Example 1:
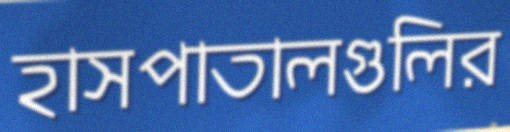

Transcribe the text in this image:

হাসপাতালগুলির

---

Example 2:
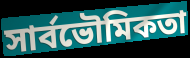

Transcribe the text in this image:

সার্বভৌমিকতা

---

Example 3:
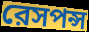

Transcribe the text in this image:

রেসপন্স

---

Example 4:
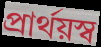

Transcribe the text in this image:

প্রার্থয়স্ব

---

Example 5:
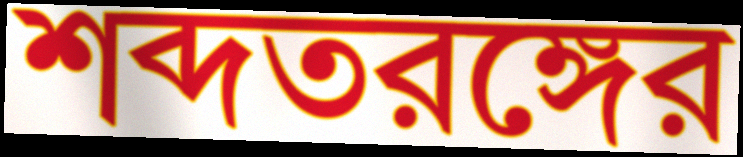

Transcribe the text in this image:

শব্দতরঙ্গের